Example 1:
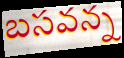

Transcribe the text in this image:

బసవన్న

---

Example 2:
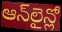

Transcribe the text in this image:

ఆన్‌లైన్లో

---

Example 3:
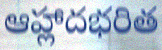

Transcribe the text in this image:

ఆహ్లాదభరిత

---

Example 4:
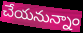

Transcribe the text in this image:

చేయనున్నాం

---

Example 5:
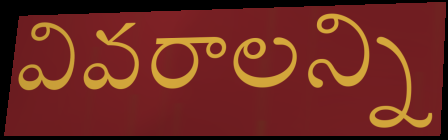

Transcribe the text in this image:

వివరాలన్ని